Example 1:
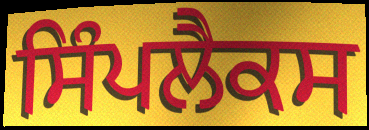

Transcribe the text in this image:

ਸਿੰਪਲੈਕਸ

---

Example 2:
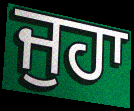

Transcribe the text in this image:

ਜੁਹਾ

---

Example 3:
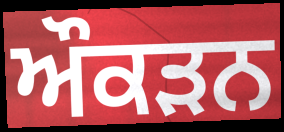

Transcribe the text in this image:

ਔਕੜਨ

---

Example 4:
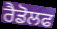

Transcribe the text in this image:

ਰੈਡੋਲਫ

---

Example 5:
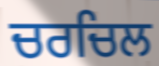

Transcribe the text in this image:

ਚਰਚਿਲ